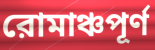
রোমাঞ্চপূর্ণ